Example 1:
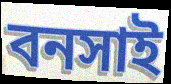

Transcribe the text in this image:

বনসাই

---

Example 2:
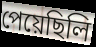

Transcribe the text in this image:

পেয়েছিলি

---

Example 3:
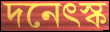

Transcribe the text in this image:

দনেৎস্ক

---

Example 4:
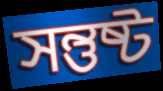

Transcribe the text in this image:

সন্তুষ্ট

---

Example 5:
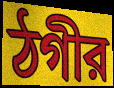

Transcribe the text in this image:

ঠগীর